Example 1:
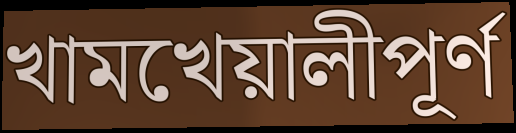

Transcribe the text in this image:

খামখেয়ালীপূর্ণ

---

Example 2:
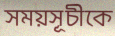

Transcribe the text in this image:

সময়সূচীকে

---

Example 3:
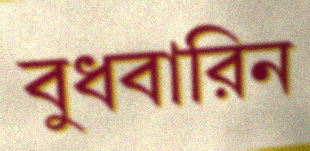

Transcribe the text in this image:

বুধবারিন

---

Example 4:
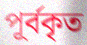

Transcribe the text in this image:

পূর্বকৃত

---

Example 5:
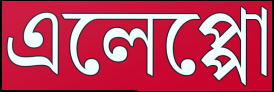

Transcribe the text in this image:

এলেপ্পো